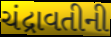
ચંદ્રાવતીની